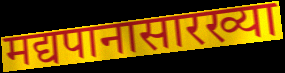
मद्यपानासारख्या